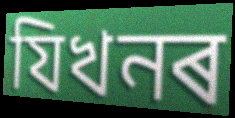
যিখনৰ